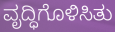
ವೃದ್ಧಿಗೊಳಿಸಿತು